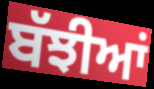
ਬੱਝੀਆਂ